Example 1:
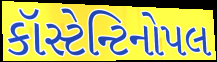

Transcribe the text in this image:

કૉસ્ટેન્ટિનોપલ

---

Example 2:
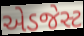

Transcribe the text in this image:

એડજેસ્ટ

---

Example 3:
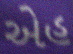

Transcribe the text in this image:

એહ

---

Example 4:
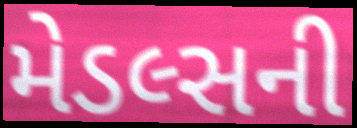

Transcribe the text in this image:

મેડલ્સની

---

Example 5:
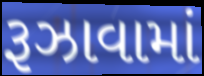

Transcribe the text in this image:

રૂઝાવામાં